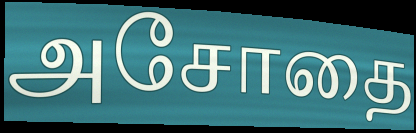
அசோதை